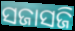
ସଜାସଜି